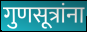
गुणसूत्रांना